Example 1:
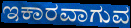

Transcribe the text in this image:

ಇಕಾರವಾಗುವ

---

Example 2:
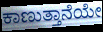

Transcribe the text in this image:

ಕಾಣುತ್ತಾನೆಯೇ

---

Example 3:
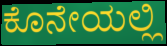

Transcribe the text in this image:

ಕೊನೇಯಲ್ಲಿ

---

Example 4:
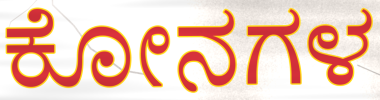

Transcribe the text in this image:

ಕೋನಗಳ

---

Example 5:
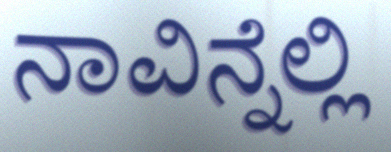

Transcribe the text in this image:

ನಾವಿನ್ನೆಲ್ಲಿ